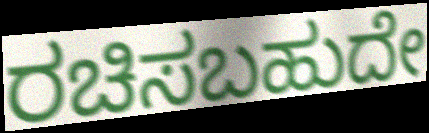
ರಚಿಸಬಹುದೇ